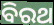
ବିରଥ